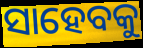
ସାହେବକୁ